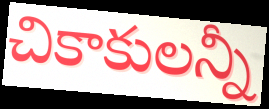
చికాకులన్నీ